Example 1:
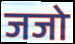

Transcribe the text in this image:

जजो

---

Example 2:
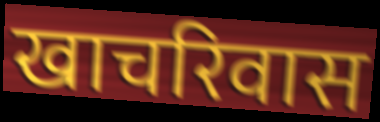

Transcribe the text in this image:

खाचरिवास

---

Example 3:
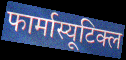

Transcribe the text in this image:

फार्मास्यूटिक्ल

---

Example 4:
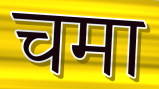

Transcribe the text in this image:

चमा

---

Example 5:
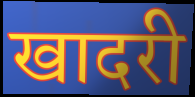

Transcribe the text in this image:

खादरी